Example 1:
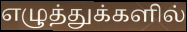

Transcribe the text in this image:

எழுத்துக்களில்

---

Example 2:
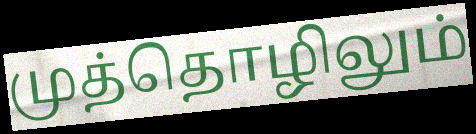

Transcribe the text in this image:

முத்தொழிலும்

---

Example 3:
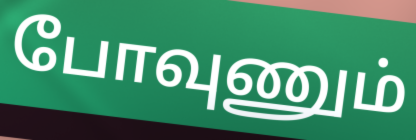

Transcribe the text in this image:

போவுணும்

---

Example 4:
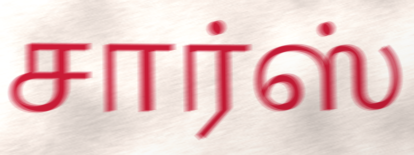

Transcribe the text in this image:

சார்ஸ்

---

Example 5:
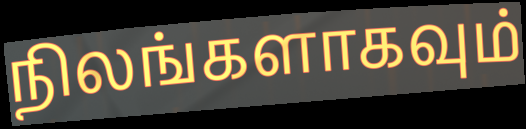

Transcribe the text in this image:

நிலங்களாகவும்